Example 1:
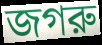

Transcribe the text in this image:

জগরু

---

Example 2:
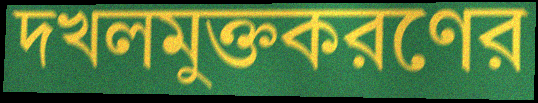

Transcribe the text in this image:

দখলমুক্তকরণের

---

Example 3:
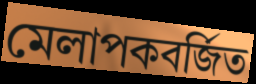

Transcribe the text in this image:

মেলাপকবর্জিত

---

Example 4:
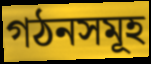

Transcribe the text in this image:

গঠনসমূহ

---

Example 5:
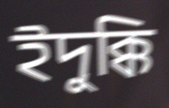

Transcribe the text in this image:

ইদুক্কি